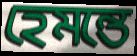
হেমন্তে